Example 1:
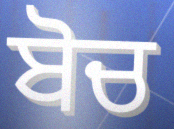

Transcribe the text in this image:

ਬੋਚ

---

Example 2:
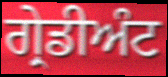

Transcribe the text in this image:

ਗ੍ਰੇਡੀਅੰਟ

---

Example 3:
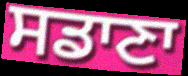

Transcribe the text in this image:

ਸਡਾਣਾ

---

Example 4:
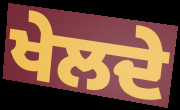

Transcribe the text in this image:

ਖੇਲਦੇ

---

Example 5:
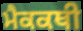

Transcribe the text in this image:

ਮੈਕਕਥੀ